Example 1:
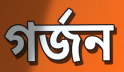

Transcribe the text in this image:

গর্জন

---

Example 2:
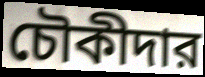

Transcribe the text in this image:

চৌকীদার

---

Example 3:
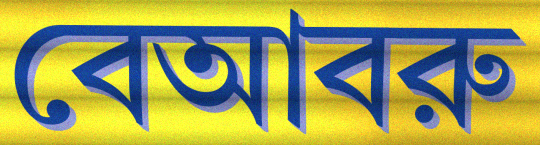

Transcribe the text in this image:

বেআবরু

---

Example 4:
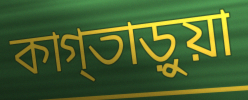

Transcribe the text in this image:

কাগ্‌তাড়ুয়া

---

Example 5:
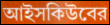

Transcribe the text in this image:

আইসকিউবের